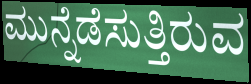
ಮುನ್ನೆಡೆಸುತ್ತಿರುವ